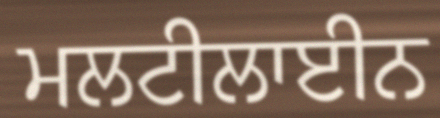
ਮਲਟੀਲਾਈਨ